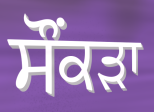
ਸੌਂਕੜਾ